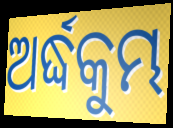
ଅର୍ଦ୍ଧକୁମ୍ଭ